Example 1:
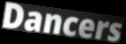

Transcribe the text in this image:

Dancers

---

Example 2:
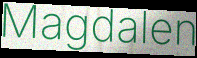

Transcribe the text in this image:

Magdalen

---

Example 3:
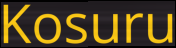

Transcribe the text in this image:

Kosuru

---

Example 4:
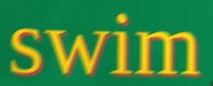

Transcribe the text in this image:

swim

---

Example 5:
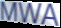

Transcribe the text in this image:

MWA